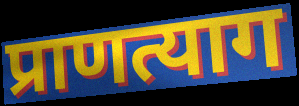
प्राणत्याग